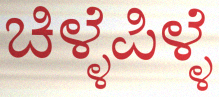
ಚಿಳ್ಳೆಪಿಳ್ಳೆ